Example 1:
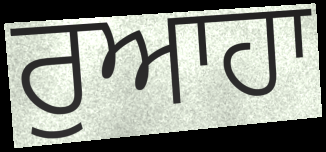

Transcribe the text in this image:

ਰੁਆਹਾ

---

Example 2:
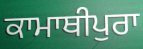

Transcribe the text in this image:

ਕਾਮਾਥੀਪੁਰਾ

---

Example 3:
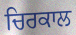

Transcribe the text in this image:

ਚਿਰਕਾਲ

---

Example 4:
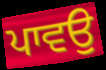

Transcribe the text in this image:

ਪਾਵਉ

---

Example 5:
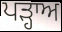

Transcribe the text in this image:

ਪੜ੍ਹਾਅ